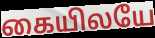
கையிலயே